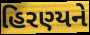
હિરણ્યને